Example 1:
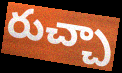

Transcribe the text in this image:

రుచ్చా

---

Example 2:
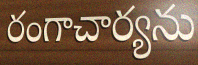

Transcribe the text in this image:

రంగాచార్యను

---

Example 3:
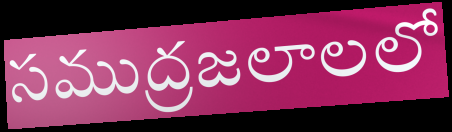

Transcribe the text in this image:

సముద్రజలాలలో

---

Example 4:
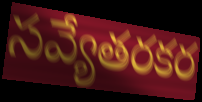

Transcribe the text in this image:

సవ్యేతరకర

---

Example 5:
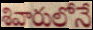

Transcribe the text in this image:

శివారులోనే